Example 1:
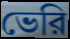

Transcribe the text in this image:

ভেরি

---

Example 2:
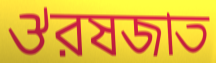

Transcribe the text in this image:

ঔরষজাত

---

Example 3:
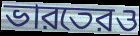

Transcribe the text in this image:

ভারতেরও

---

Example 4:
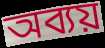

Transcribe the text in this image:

অব্যয়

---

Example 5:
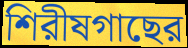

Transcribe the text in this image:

শিরীষগাছের